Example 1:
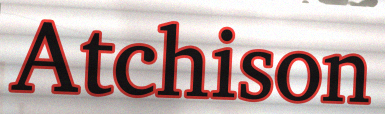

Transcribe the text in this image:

Atchison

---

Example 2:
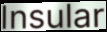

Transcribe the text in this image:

Insular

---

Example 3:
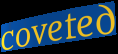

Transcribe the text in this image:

coveted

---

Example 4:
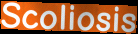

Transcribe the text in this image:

Scoliosis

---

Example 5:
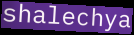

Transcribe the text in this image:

shalechya